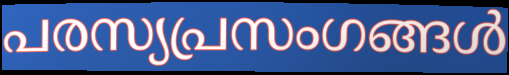
പരസ്യപ്രസംഗങ്ങൾ